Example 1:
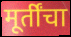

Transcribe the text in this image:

मूर्तींचा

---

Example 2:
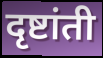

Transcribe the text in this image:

दृष्टांती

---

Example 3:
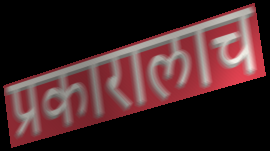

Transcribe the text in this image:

प्रकारालाच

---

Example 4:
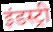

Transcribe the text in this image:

इंडस्ट्री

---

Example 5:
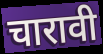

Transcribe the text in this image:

चारावी